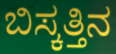
ಬಿಸ್ಕತ್ತಿನ